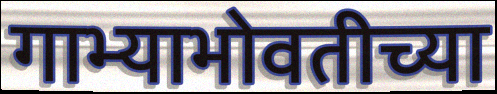
गाभ्याभोवतीच्या